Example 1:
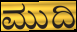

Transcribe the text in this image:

ಮುದಿ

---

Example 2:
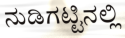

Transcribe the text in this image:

ನುಡಿಗಟ್ಟಿನಲ್ಲಿ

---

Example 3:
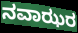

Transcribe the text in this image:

ನವಾಝರ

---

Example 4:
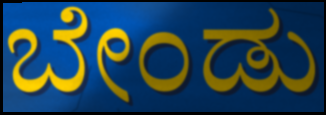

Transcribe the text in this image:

ಬೇಂಡು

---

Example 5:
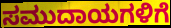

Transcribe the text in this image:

ಸಮುದಾಯಗಳಿಗೆ